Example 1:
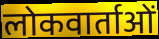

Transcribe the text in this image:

लोकवार्ताओं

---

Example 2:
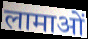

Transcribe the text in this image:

लामाओं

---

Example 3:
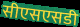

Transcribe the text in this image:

सीएसएसडी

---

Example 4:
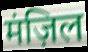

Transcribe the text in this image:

मंज़िल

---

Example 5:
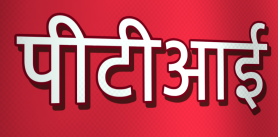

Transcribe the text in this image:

पीटीआई